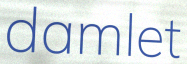
damlet